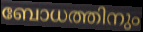
ബോധത്തിനും